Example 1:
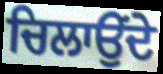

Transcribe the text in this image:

ਚਿਲਾਉਂਦੇ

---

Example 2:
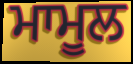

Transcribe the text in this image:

ਮਾਮੂਲ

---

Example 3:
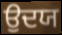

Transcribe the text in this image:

ਉਦਯ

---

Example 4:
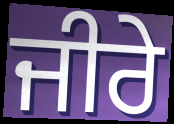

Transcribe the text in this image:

ਜੀਰੇ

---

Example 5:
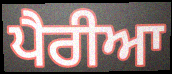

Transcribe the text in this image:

ਪੈਰੀਆ